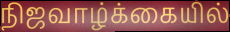
நிஜவாழ்க்கையில்